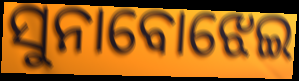
ସୁନାବୋଝେଇ